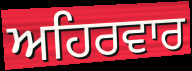
ਅਹਿਰਵਾਰ